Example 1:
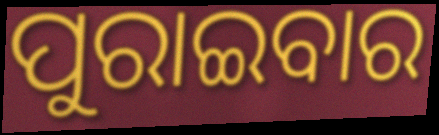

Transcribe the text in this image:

ପୁରାଇବାର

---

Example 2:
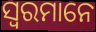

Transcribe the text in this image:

ସ୍ୱରମାନେ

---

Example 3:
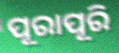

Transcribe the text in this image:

ପୂରାପୂରି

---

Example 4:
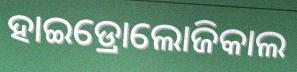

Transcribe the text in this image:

ହାଇଡ୍ରୋଲୋଜିକାଲ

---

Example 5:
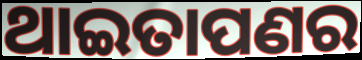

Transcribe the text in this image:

ଥାଇତାପଣର